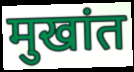
मुखांत